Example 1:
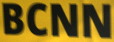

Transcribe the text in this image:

BCNN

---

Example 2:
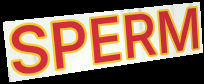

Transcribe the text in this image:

SPERM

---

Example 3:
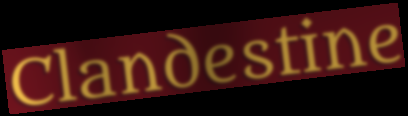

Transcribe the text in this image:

Clandestine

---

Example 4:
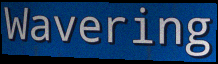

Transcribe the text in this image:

Wavering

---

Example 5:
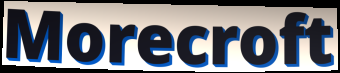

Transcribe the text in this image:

Morecroft